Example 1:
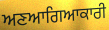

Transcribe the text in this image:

ਅਣਆਗਿਆਕਾਰੀ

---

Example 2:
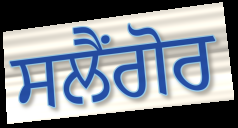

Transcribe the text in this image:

ਸਲੈਂਗੋਰ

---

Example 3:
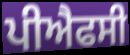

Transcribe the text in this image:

ਪੀਐਫਸੀ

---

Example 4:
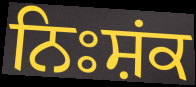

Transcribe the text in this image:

ਨਿਃਸ਼ਂਕ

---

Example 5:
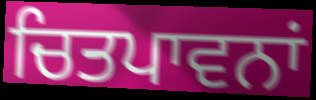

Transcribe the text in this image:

ਚਿਤਪਾਵਨਾਂ